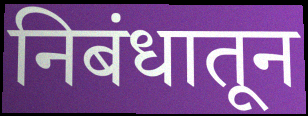
निबंधातून